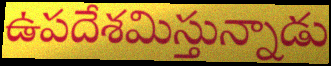
ఉపదేశమిస్తున్నాడు